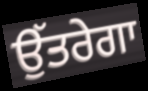
ਉੱਤਰੇਗਾ